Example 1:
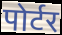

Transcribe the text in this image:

पोर्टर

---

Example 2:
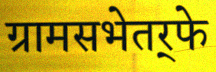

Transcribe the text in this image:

ग्रामसभेतर्फे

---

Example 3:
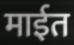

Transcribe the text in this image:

माईत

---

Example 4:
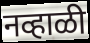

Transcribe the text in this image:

नव्हाळी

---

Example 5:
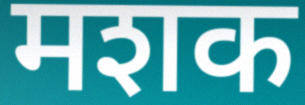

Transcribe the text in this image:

मशक